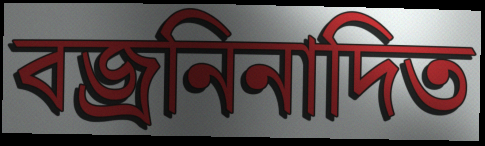
বজ্রনিনাদিত